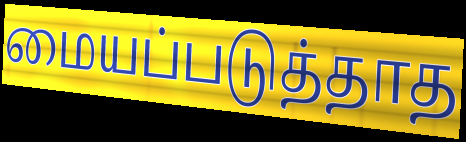
மையப்படுத்தாத